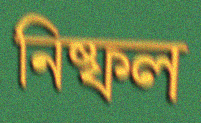
নিষ্ফল